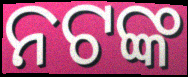
ନଟଙ୍କ